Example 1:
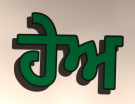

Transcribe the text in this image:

ਹੇਅ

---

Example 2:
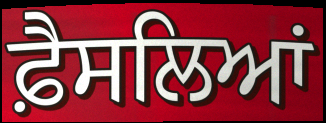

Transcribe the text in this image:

ਫ਼ੈਸਲਿਆਂ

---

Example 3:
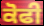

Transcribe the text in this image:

ਕੋਫੀ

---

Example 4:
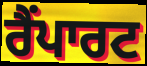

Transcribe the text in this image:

ਰੈਂਪਾਰਟ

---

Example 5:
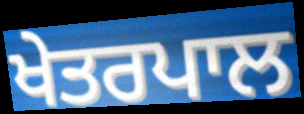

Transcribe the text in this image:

ਖੇਤਰਪਾਲ